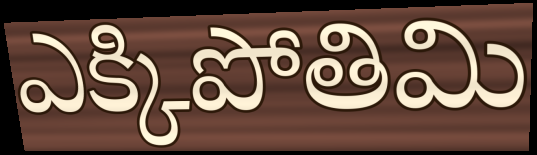
ఎక్కిపోతిమి